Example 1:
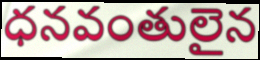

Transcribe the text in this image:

ధనవంతులైన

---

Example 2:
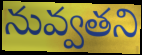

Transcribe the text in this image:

నువ్వతని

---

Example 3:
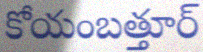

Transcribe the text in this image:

కోయంబత్తూర్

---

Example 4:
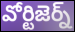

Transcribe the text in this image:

వోర్టిజెర్న్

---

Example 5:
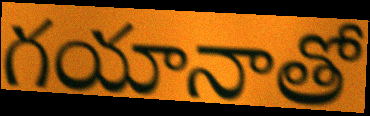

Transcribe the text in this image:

గయానాతో